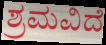
ಶ್ರಮವಿದೆ